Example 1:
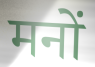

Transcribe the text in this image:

मनों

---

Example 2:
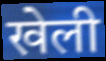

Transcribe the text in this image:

खेली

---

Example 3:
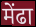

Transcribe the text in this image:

मेंढा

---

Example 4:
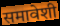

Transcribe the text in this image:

समावेशी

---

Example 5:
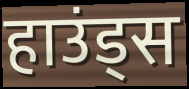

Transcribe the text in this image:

हाउंड्स